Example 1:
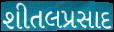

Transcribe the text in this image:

શીતલપ્રસાદ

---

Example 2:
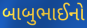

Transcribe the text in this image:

બાબુભાઈનો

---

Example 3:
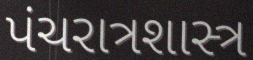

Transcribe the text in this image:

પંચરાત્રશાસ્ત્ર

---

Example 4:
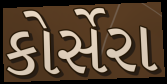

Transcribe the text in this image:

કોર્સેરા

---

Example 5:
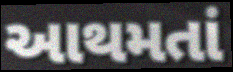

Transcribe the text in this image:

આથમતાં